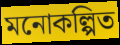
মনোকল্পিত